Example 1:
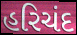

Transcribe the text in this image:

હરિચંદ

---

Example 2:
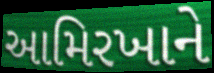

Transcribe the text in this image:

આમિરખાને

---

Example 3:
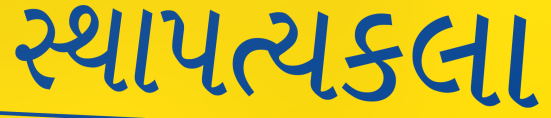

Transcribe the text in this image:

સ્થાપત્યકલા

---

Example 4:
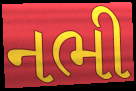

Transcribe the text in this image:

નભી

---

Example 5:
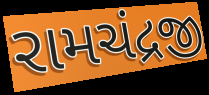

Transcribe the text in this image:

રામચંદ્રજી